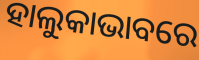
ହାଲୁକାଭାବରେ